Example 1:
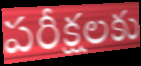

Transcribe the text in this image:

పరీక్షలకు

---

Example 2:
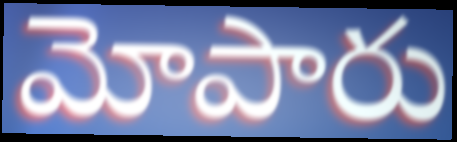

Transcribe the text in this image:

మోపారు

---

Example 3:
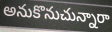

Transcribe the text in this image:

అనుకొనుచున్నారా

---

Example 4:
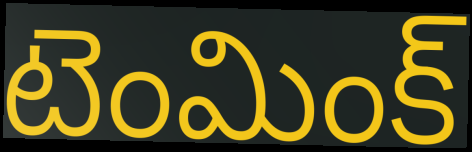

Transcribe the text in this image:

టెంమింక్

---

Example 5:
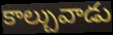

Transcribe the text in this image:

కాల్చువాడు